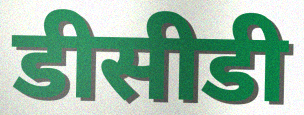
डीसीडी